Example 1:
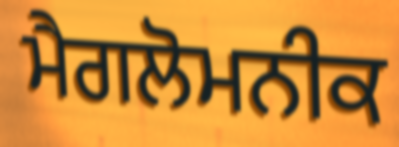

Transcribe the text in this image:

ਮੈਗਲੋਮਨੀਕ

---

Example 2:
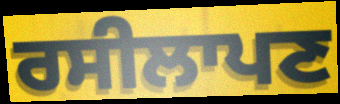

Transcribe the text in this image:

ਰਸੀਲਾਪਣ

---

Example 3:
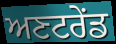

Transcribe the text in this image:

ਅਣਟਰੇਂਡ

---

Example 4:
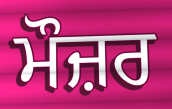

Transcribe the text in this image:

ਮੌਜ਼ਰ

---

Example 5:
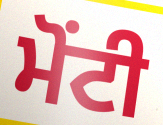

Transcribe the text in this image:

ਮੋਂਟੀ